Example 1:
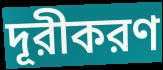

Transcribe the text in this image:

দূরীকরণ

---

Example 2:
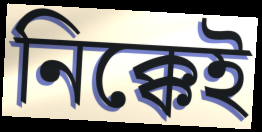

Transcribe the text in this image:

নিক্কেই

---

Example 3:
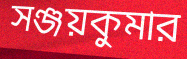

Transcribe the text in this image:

সঞ্জয়কুমার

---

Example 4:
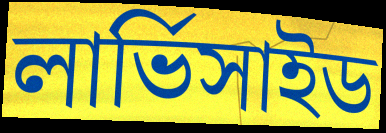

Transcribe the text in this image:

লার্ভিসাইড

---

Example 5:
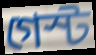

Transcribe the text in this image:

গেস্ট